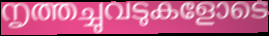
നൃത്തച്ചുവടുകളോടെ